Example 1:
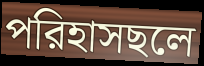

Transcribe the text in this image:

পরিহাসছলে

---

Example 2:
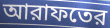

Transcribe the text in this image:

আরাফতের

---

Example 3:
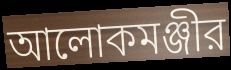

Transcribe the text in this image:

আলোকমঞ্জীর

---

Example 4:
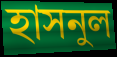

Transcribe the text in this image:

হাসনুল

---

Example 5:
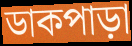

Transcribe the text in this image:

ডাকপাড়া